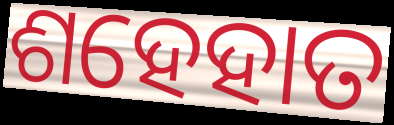
ଶହେହାତ